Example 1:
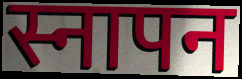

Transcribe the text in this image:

स्नापन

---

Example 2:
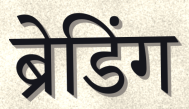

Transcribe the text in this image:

ब्रेडिंग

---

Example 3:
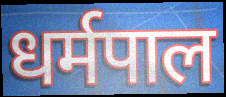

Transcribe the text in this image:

धर्मपाल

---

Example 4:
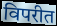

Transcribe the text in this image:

विपरीत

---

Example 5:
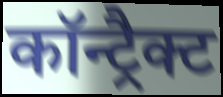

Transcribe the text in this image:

कॉन्ट्रैक्ट